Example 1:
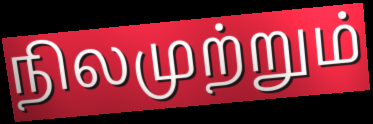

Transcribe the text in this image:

நிலமுற்றும்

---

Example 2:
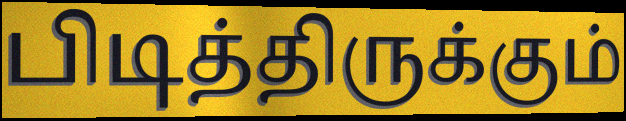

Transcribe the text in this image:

பிடித்திருக்கும்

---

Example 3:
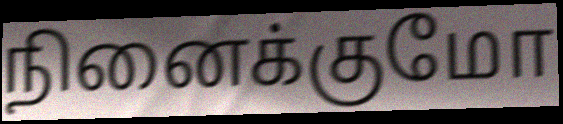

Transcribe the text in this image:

நினைக்குமோ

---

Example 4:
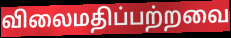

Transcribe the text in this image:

விலைமதிப்பற்றவை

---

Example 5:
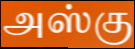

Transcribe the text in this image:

அஸ்கு